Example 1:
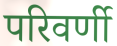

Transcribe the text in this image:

परिवर्णी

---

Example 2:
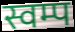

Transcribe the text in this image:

स्वम्प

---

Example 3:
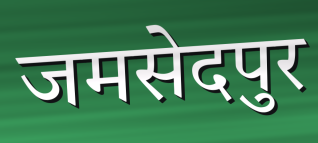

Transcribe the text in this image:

जमसेदपुर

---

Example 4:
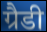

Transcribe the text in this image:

ग्रैडी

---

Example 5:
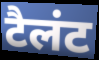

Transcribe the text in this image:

टैलंट